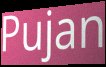
Pujan